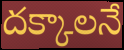
దక్కాలనే